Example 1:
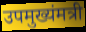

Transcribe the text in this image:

उपमुख्यंमत्री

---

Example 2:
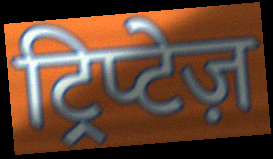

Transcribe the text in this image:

ट्रिप्टेज़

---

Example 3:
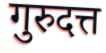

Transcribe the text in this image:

गुरुदत्त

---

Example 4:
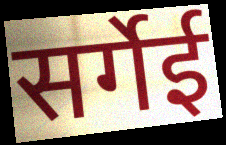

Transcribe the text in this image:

सर्गेई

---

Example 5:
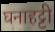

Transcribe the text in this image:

घनाहट्टी